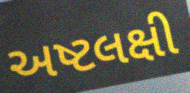
અષ્ટલક્ષી